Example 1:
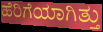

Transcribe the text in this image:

ಹೆರಿಗೆಯಾಗಿತ್ತು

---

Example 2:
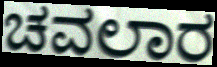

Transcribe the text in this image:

ಚವಲಾರ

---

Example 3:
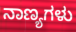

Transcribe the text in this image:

ನಾಣ್ಯಗಳು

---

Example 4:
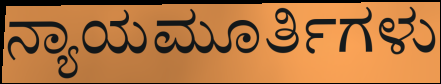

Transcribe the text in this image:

ನ್ಯಾಯಮೂರ್ತಿಗಳು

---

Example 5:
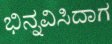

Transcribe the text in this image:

ಭಿನ್ನವಿಸಿದಾಗ